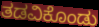
ತಡವಿಕೊಂಡು